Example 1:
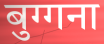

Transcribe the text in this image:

बुग्गना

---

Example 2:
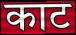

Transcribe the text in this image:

काट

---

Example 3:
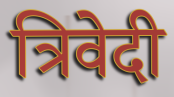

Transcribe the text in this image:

त्रिवेदी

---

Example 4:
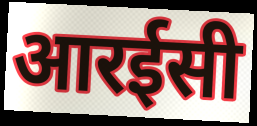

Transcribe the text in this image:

आरईसी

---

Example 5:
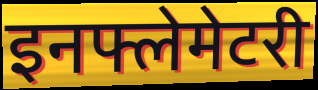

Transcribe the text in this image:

इनफ्लेमेटरी